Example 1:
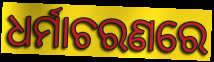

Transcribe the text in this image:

ଧର୍ମାଚରଣରେ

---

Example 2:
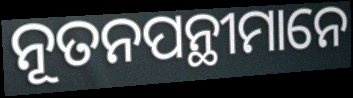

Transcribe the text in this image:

ନୂତନପନ୍ଥୀମାନେ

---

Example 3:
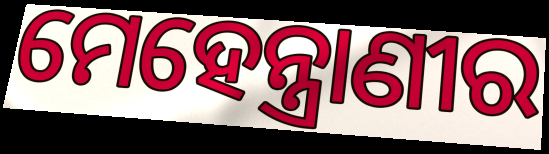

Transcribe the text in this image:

ମେହେନ୍ତ୍ରାଣୀର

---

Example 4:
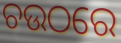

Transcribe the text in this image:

ଚଉଠରେ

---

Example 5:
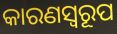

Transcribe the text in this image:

କାରଣସ୍ୱରୂପ